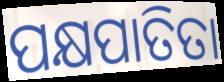
ପକ୍ଷପାତିତା